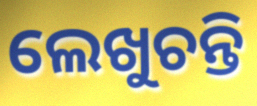
ଲେଖୁଚନ୍ତି